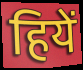
हियें